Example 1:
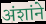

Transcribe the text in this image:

अंशांने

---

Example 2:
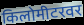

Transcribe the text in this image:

किलोमीटरवर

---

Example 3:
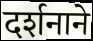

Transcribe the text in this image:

दर्शनाने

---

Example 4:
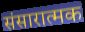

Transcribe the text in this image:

संसारात्मक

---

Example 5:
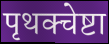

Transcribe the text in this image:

पृथक्चेष्टा